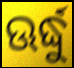
ଊର୍ଦ୍ଧୁ